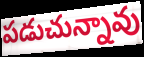
పడుచున్నావు